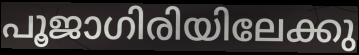
പൂജാഗിരിയിലേക്കു